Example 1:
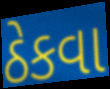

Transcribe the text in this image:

ઠેકવા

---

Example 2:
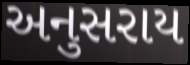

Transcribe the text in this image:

અનુસરાય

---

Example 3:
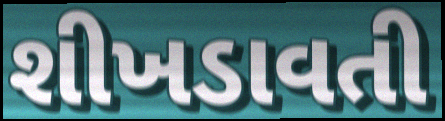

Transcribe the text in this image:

શીખડાવતી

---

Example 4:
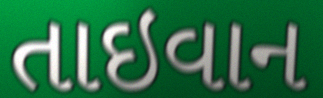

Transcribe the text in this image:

તાઇવાન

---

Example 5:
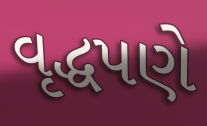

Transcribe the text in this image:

વૃદ્ધપણે